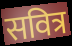
सवित्र